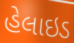
હેલાઇડ